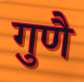
गुणै